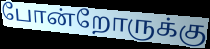
போன்றோருக்கு